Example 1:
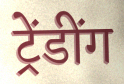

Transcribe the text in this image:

ट्रेंडींग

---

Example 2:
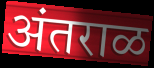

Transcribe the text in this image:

अंतराळ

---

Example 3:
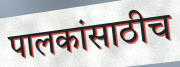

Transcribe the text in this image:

पालकांसाठीच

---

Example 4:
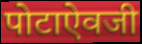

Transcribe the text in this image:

पोटाऐवजी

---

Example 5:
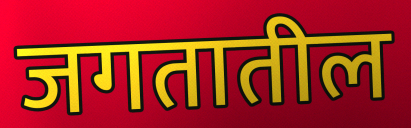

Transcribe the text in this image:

जगतातील